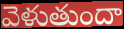
వెళుతుందా